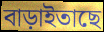
বাড়াইতাছে